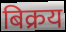
बिक्रय